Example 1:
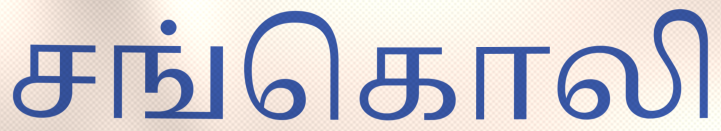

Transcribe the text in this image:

சங்கொலி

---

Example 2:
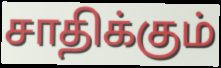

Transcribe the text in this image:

சாதிக்கும்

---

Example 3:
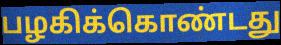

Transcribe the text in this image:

பழகிக்கொண்டது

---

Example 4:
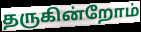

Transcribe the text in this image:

தருகின்றோம்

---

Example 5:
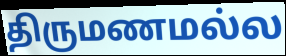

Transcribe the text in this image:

திருமணமல்ல